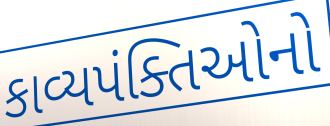
કાવ્યપંક્તિઓનો